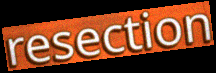
resection